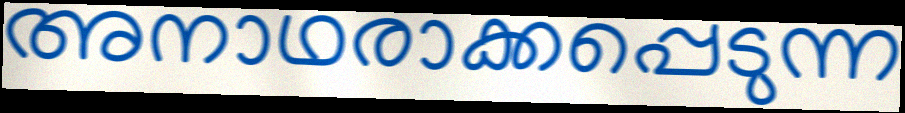
അനാഥരാക്കപ്പെടുന്ന